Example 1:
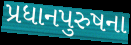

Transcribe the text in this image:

પ્રધાનપુરુષના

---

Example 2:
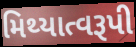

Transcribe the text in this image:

મિથ્યાત્વરૂપી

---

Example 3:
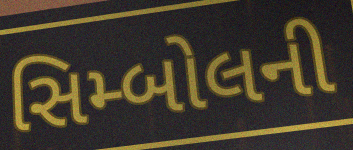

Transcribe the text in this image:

સિમ્બોલની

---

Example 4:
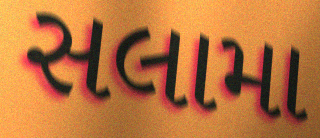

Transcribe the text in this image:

સલામા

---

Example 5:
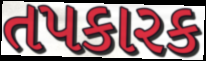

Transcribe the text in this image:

તપકારક